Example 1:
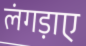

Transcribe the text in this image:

लंगड़ाए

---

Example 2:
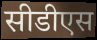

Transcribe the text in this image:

सीडीएस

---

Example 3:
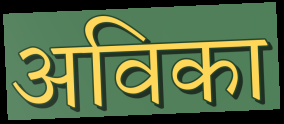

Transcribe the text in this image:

अविका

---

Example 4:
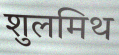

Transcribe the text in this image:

शुलमिथ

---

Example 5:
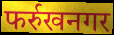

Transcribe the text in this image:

फर्रुखनगर